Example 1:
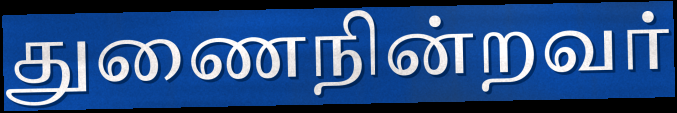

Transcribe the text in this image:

துணைநின்றவர்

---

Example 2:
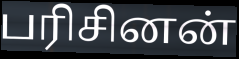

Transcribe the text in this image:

பரிசினன்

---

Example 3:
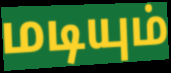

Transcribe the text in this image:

மடியும்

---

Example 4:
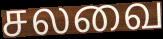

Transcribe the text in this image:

சலவை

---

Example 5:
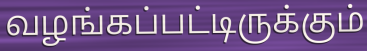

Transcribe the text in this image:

வழங்கப்பட்டிருக்கும்